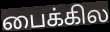
பைக்கில